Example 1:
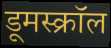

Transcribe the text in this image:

डूमस्क्रॉल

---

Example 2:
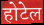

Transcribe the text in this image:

होटेल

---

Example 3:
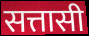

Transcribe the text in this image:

सत्तासी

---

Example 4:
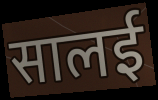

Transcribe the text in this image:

सालई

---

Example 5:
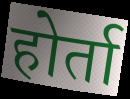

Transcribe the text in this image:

होर्ता